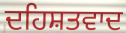
ਦਹਿਸ਼ਤਵਾਦ